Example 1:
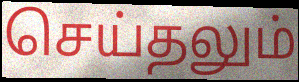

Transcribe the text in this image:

செய்தலும்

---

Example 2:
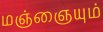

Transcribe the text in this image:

மஞ்ஞையும்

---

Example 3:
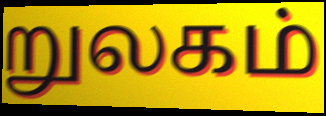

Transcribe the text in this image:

றுலகம்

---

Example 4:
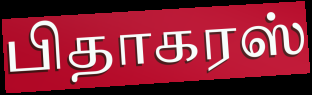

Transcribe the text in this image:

பிதாகரஸ்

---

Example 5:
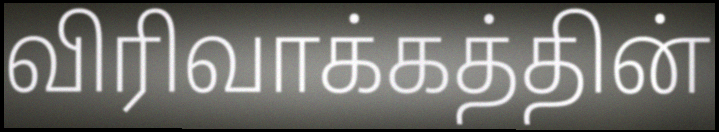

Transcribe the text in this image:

விரிவாக்கத்தின்